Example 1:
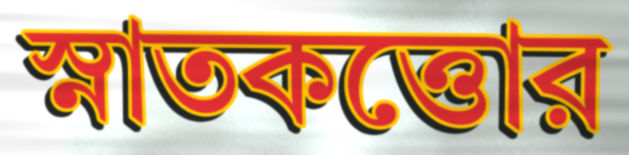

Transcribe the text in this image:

স্নাতকত্তোর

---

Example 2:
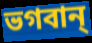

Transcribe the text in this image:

ভগবান্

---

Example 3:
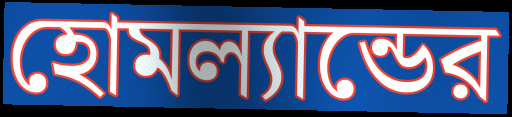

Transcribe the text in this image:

হোমল্যান্ডের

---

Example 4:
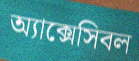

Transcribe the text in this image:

অ্যাক্সেসিবল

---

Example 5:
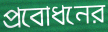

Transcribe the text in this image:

প্রবোধনের